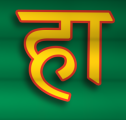
हा